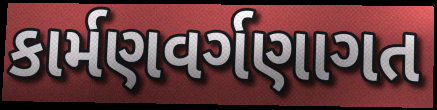
કાર્મણવર્ગણાગત